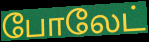
போலேட்